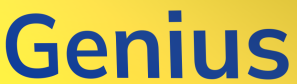
Genius